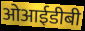
ओआईडीबी